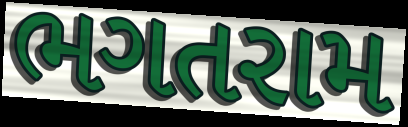
ભગતરામ